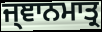
ਜ੍ਞਾਨਮਾਤ੍ਰ